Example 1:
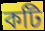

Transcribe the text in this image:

কটি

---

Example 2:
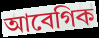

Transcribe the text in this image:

আবেগিক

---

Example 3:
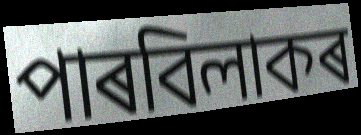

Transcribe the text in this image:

পাৰবিলাকৰ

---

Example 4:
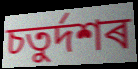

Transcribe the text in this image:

চতুৰ্দশৰ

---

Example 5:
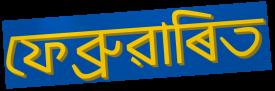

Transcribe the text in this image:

ফেব্ৰুৱাৰিত